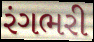
રંગભરી